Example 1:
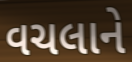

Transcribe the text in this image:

વચલાને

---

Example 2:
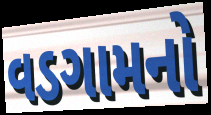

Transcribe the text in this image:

વડગામનો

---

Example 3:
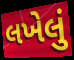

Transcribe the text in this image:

લખેલું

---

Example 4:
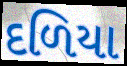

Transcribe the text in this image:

દળિયા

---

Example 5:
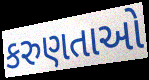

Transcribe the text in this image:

કરુણતાઓ